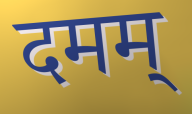
दमम्